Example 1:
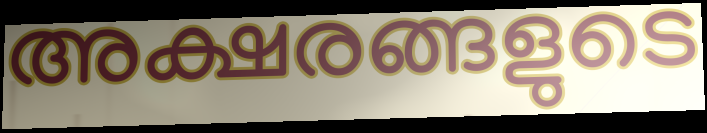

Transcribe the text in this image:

അക്ഷരങ്ങളുടെ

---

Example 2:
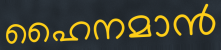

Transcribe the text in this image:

ഹൈനമാൻ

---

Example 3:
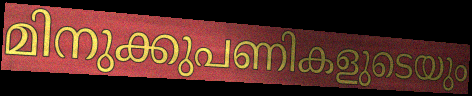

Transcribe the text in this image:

മിനുക്കുപണികളുടെയും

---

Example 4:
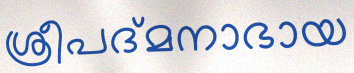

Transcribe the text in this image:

ശ്രീപദ്മനാഭായ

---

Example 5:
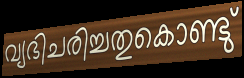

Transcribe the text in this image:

വ്യഭിചരിച്ചതുകൊണ്ടു്